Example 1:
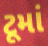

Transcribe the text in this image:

ટૂમાં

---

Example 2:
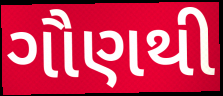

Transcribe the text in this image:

ગૌણથી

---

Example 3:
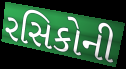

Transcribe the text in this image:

રસિકોની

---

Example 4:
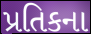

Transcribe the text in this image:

પ્રતિકના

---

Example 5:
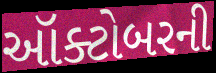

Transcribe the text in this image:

ઑક્ટોબરની